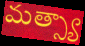
మత్స్యా